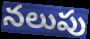
నలుపు